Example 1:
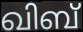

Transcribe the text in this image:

ഖിബ്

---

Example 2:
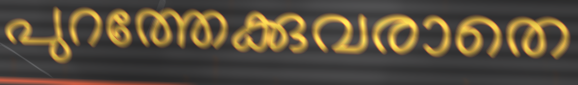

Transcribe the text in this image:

പുറത്തേക്കുവരാതെ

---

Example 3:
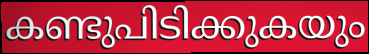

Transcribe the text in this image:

കണ്ടുപിടിക്കുകയും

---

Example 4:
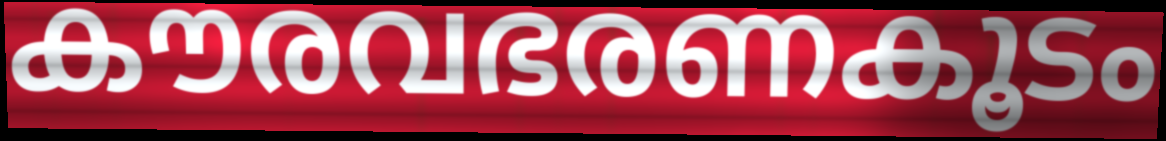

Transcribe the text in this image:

കൗരവഭരണകൂടം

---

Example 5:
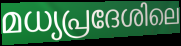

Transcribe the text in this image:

മധ്യപ്രദേശിലെ